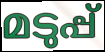
മടുപ്പ്